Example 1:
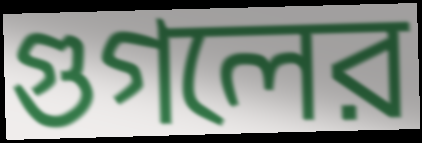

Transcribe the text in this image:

গুগলের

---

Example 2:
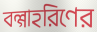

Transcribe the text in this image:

বল্গাহরিণের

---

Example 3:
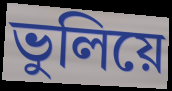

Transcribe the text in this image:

ভুলিয়ে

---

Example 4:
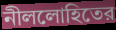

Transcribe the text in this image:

নীললোহিতের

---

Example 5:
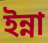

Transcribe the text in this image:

ইন্না